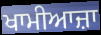
ਖਾਮੀਆਜ਼ਾ